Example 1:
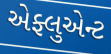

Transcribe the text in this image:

એફ્લુએન્ટ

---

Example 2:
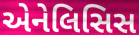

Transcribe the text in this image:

એનેલિસિસ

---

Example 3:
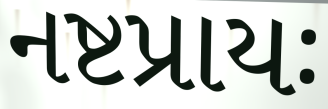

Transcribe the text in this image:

નષ્ટપ્રાયઃ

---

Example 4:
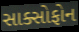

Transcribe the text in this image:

સાક્સોફોન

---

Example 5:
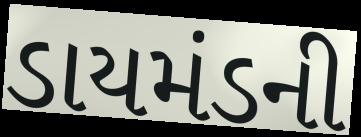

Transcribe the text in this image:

ડાયમંડની